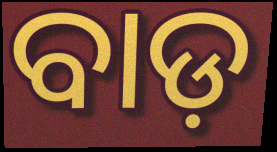
ବାଡ଼